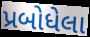
પ્રબોધેલા